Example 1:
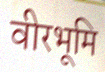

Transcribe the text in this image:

वीरभूमि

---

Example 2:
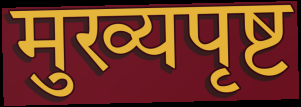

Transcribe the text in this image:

मुख्यपृष्ट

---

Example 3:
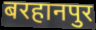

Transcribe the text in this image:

बरहानपुर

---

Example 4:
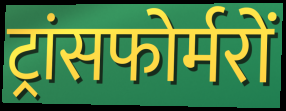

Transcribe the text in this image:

ट्रांसफोर्मरों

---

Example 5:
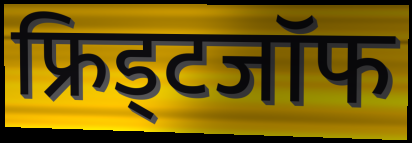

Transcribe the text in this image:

फ्रिड्टजॉफ